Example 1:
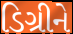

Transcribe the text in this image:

ડિગ્રીને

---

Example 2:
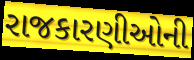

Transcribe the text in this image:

રાજકારણીઓની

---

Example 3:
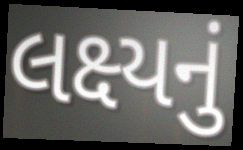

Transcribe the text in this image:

લક્ષ્યનું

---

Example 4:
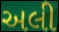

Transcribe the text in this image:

અલી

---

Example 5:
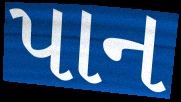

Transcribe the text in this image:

પાન